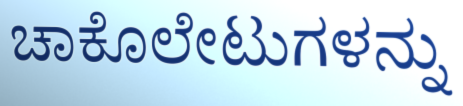
ಚಾಕೊಲೇಟುಗಳನ್ನು